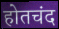
होतचंद